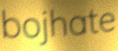
bojhate